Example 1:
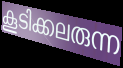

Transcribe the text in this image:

കൂടിക്കലരുന്ന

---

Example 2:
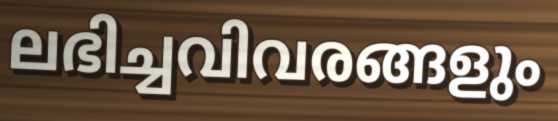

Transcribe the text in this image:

ലഭിച്ചവിവരങ്ങളും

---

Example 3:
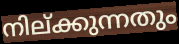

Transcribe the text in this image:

നില്ക്കുന്നതും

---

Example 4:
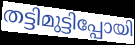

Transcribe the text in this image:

തട്ടിമുട്ടിപ്പോയി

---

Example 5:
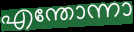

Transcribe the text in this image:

എന്തോന്നാ